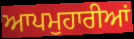
ਆਪਮੁਹਾਰੀਆਂ